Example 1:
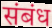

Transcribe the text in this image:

संबंध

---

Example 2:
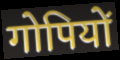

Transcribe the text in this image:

गोपियों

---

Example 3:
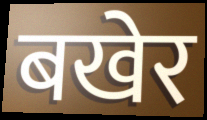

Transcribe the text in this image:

बखेर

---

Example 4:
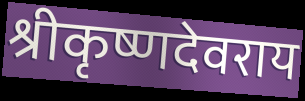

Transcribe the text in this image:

श्रीकृष्णदेवराय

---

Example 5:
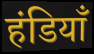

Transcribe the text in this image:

हंडियाँ